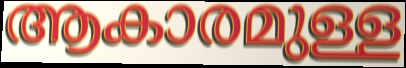
ആകാരമുള്ള